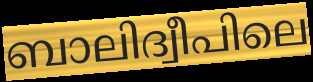
ബാലിദ്വീപിലെ